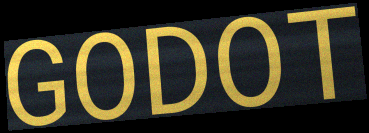
GODOT